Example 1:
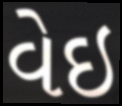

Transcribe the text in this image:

વેઇ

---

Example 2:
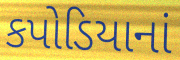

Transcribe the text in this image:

કપોડિયાનાં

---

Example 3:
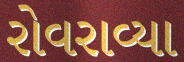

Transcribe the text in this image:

રોવરાવ્યા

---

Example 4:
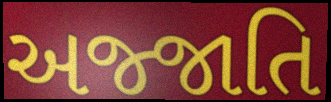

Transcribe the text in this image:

અજ્જાતિ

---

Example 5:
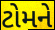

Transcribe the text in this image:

ટોમને